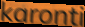
karonti